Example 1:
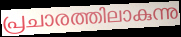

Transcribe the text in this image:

പ്രചാരത്തിലാകുന്നു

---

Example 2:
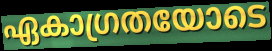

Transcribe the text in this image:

ഏകാഗ്രതയോടെ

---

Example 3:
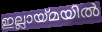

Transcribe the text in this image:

ഇല്ലായ്മയിൽ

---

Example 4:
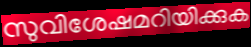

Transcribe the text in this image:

സുവിശേഷമറിയിക്കുക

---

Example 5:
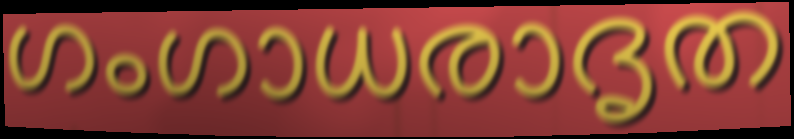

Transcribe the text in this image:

ഗംഗാധരാദൃത